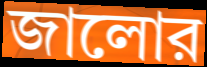
জালোর